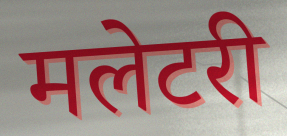
मलेटरी